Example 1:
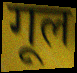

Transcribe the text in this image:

गूल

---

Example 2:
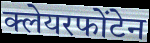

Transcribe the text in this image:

क्लेयरफोंटेन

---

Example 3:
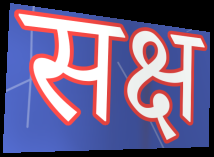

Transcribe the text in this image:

सक्ष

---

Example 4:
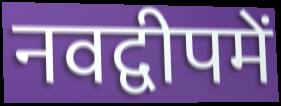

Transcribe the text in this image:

नवद्वीपमें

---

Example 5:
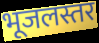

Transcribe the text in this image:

भूजलस्तर